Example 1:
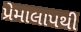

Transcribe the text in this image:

પ્રેમાલાપથી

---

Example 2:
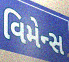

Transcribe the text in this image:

વિમેન્સ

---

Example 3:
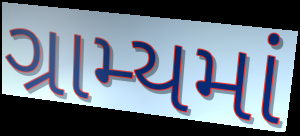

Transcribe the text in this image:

ગ્રામ્યમાં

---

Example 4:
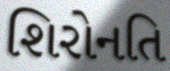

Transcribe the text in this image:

શિરોનતિ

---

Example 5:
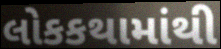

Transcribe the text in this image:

લોકકથામાંથી